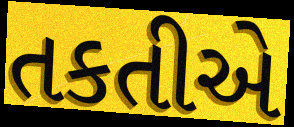
તકતીએ